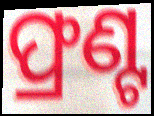
ଫ୍ରଣ୍ଟ